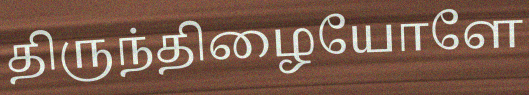
திருந்திழையோளே